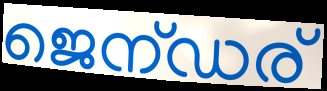
ജെന്ഡര്